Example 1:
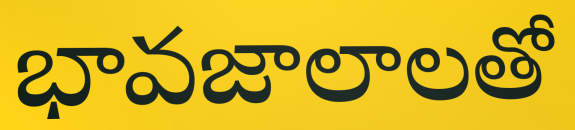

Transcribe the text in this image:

భావజాలాలతో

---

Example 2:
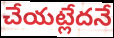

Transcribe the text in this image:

చేయట్లేదనే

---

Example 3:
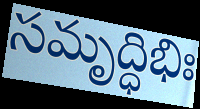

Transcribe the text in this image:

సమృద్ధిభిః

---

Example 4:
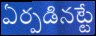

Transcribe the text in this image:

ఏర్పడినట్టే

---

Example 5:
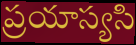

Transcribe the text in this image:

ప్రయాస్యసి